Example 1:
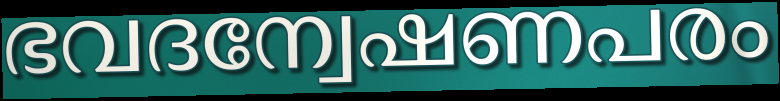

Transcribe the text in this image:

ഭവദന്വേഷണപരം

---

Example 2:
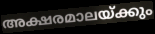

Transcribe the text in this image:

അക്ഷരമാലയ്ക്കും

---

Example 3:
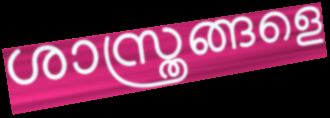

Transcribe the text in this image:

ശാസ്ത്രങ്ങളെ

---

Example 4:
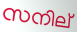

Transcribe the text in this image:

സനില്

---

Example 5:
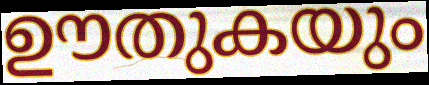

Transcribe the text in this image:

ഊതുകയും